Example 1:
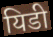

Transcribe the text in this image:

यिडी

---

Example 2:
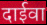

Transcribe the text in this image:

दाईवा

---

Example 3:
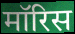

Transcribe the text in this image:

मॉरिस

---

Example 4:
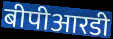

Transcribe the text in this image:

बीपीआरडी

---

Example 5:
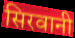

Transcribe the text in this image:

सिरवानी